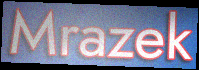
Mrazek